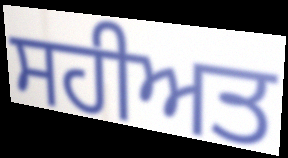
ਸਹੀਅਤ